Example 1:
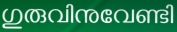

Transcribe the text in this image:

ഗുരുവിനുവേണ്ടി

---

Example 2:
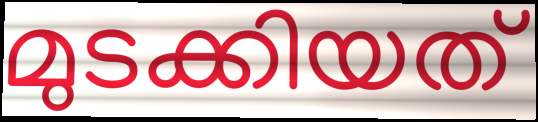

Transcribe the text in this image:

മുടക്കിയത്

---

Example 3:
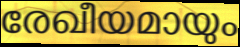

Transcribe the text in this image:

രേഖീയമായും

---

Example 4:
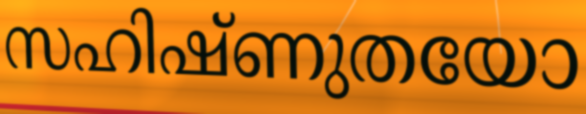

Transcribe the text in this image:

സഹിഷ്ണുതയോ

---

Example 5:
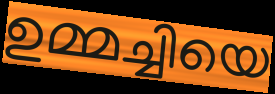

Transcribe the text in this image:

ഉമ്മച്ചിയെ